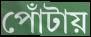
পোঁটায়